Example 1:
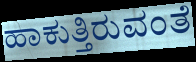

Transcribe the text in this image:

ಹಾಕುತ್ತಿರುವಂತೆ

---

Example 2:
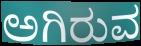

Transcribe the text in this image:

ಅಗಿರುವ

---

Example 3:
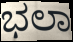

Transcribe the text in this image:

ಭಲಾ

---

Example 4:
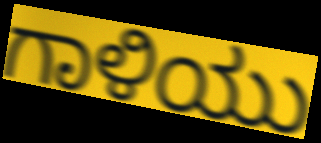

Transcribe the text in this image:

ಗಾಳಿಯು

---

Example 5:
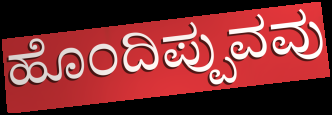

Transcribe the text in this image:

ಹೊಂದಿಪ್ಪುವವು